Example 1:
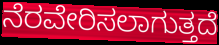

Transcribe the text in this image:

ನೆರವೇರಿಸಲಾಗುತ್ತದೆ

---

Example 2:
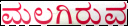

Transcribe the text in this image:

ಮಲಗಿರುವ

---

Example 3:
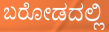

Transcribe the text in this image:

ಬರೋಡದಲ್ಲಿ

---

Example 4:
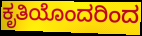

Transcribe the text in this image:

ಕೃತಿಯೊಂದರಿಂದ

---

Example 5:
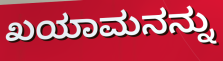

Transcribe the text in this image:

ಖಯಾಮನನ್ನು